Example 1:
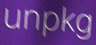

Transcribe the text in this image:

unpkg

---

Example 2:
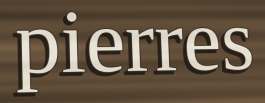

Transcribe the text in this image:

pierres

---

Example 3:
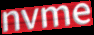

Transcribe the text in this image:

nvme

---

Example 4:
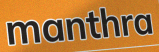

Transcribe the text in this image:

manthra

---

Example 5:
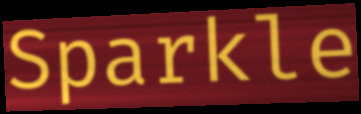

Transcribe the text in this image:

Sparkle